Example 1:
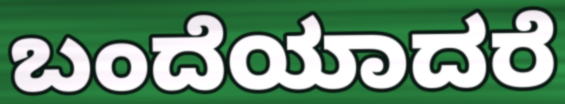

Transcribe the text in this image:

ಬಂದೆಯಾದರೆ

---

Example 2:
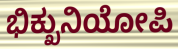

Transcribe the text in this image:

ಭಿಕ್ಖುನಿಯೋಪಿ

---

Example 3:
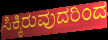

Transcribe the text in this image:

ಸಿಕ್ಕಿರುವುದರಿಂದ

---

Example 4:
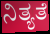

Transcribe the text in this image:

ನಿತ್ಯತೆ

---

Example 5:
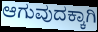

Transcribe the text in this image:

ಆಗುವುದಕ್ಕಾಗಿ